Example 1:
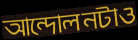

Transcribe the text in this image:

আন্দোলনটাও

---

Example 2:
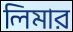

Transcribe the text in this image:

লিমার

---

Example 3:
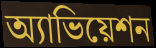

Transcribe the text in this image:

অ্যাভিয়েশন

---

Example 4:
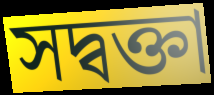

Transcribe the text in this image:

সদ্বক্তা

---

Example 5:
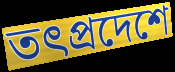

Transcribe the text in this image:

তৎপ্রদেশে